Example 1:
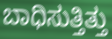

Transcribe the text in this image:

ಬಾಧಿಸುತ್ತಿತ್ತು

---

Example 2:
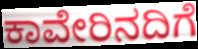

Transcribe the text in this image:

ಕಾವೇರಿನದಿಗೆ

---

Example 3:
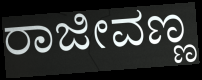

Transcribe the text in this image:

ರಾಜೀವಣ್ಣ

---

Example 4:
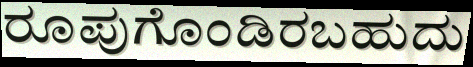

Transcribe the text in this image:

ರೂಪುಗೊಂಡಿರಬಹುದು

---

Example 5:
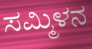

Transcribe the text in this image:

ಸಮ್ಮಿಳನ